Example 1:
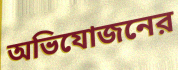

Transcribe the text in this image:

অভিযোজনের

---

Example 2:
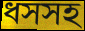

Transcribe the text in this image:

ধসসহ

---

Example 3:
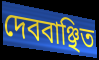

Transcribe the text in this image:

দেববাঞ্ছিত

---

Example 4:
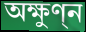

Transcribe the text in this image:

অক্ষুণ্ন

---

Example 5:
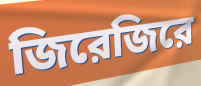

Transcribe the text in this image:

জিরেজিরে